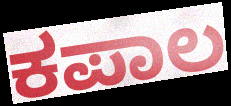
ಕಪಾಲ